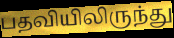
பதவியிலிருந்து